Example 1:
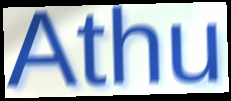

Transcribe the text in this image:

Athu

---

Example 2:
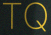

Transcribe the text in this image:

TQ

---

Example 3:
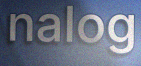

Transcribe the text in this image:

nalog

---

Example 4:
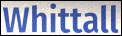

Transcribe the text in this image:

Whittall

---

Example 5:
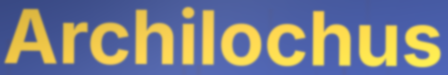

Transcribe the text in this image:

Archilochus